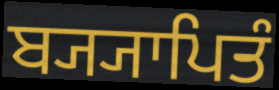
ਬ੍ਯ੍ਯਾਪਿਤੰ